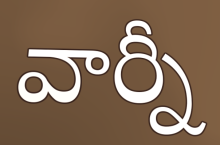
వార్నీ